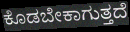
ಕೊಡಬೇಕಾಗುತ್ತದೆ